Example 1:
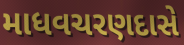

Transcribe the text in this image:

માધવચરણદાસે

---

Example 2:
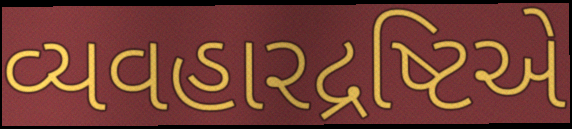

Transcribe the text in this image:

વ્યવહારદ્રષ્ટિએ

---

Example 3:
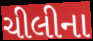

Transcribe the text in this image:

ચીલીના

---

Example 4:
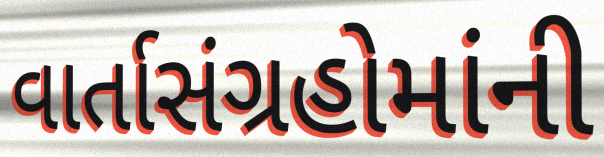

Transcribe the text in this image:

વાર્તાસંગ્રહોમાંની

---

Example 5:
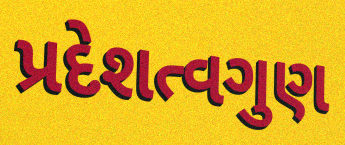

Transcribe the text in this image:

પ્રદેશત્વગુણ